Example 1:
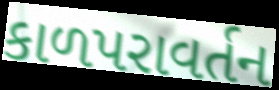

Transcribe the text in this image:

કાળપરાવર્તન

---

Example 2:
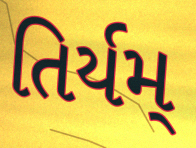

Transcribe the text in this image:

તિર્યમ્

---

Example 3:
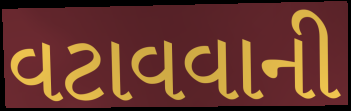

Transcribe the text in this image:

વટાવવાની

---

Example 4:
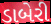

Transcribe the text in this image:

ડાબેરી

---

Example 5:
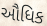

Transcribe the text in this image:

ઔધિક